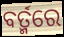
ବର୍ତ୍ମରେ